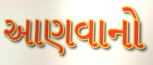
આણવાનો